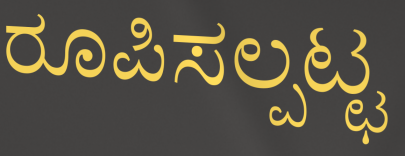
ರೂಪಿಸಲ್ಪಟ್ಟ